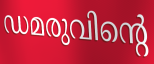
ഡമരുവിന്റെ